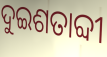
ଦୁଇଶତାବ୍ଦୀ